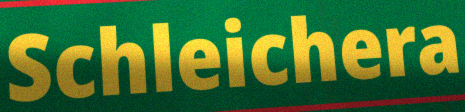
Schleichera